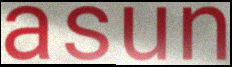
asun